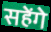
सहेंगे